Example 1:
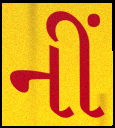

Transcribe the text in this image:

નીં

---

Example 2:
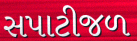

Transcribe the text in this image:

સપાટીજળ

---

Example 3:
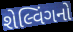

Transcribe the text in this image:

શેલ્વિંગનો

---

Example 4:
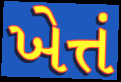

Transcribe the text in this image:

ખેત્તં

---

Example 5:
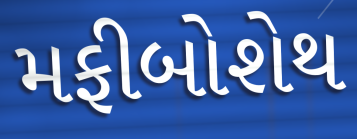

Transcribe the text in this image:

મફીબોશેથ